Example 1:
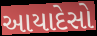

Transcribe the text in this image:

આયાદેસો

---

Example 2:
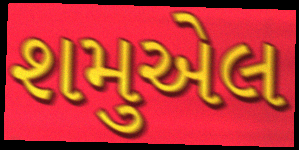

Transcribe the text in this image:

શમુએલ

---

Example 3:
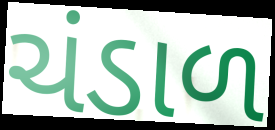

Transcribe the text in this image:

ચંડાળ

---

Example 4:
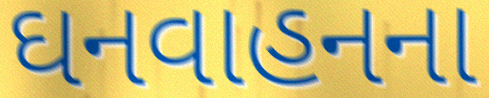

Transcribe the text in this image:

ઘનવાહનના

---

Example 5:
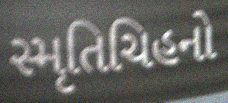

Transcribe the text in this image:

સ્મૃતિચિહનો